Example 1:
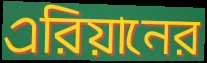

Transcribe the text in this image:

এরিয়ানের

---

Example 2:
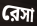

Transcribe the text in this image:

রেসা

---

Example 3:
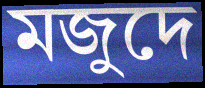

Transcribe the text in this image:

মজুদে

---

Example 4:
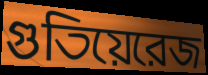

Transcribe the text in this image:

গুতিয়েরেজ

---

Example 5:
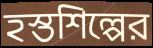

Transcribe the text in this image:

হস্তশিল্পের